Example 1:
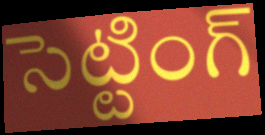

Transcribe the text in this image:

సెట్టింగ్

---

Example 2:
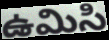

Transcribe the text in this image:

ఉమిసి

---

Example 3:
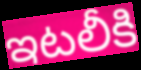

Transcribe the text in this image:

ఇటలీకి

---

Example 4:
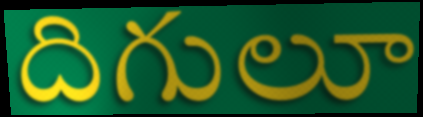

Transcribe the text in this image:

దిగులూ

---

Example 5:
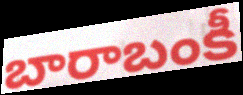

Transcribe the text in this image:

బారాబంకీ